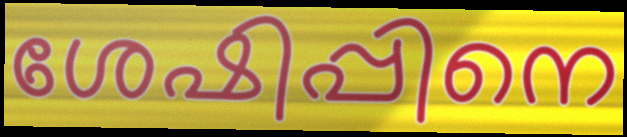
ശേഷിപ്പിനെ